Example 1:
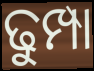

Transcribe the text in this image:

ଢୁମ୍ପା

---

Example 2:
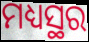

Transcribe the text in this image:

ମଧ୍ୟସ୍ଥର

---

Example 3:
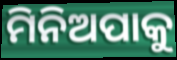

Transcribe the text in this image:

ମିନିଅପାକୁ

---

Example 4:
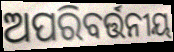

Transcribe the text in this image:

ଅପରିବର୍ତ୍ତନୀୟ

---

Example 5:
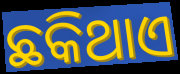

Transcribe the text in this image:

ଛକିଥାଏ